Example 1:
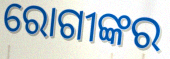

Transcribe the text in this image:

ରୋଗୀଙ୍କର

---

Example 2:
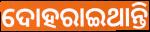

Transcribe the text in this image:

ଦୋହରାଇଥାନ୍ତି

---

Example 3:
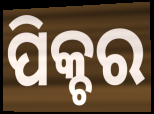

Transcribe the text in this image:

ପିକ୍ଚର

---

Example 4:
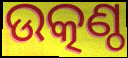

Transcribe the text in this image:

ଉତ୍କଣ୍ଠ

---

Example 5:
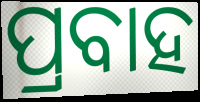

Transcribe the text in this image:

ପ୍ରବାହ